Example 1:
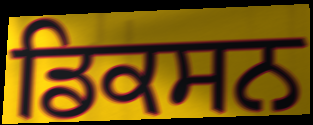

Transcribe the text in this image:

ਡਿਕਸਨ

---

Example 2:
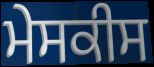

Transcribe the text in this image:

ਮੇਸਕੀਸ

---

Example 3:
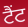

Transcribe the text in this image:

ਟੈਂਟ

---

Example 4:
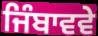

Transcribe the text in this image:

ਜਿੰਬਾਵਵੇ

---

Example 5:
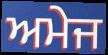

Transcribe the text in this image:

ਅਮੇਜ